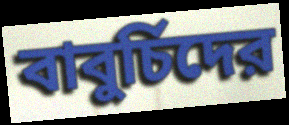
বাবুর্চিদের